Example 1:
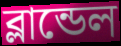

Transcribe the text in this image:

ব্লান্ডেল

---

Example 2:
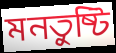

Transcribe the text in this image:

মনতুষ্টি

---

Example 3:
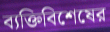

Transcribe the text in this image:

ব্যক্তিবিশেষের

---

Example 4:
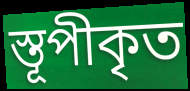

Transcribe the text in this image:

স্তূপীকৃত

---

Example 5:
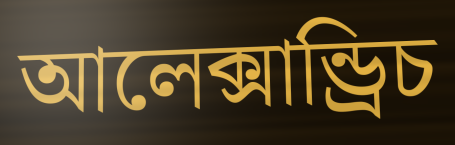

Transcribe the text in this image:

আলেক্সান্ড্রিচ